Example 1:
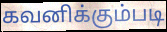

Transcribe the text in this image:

கவனிக்கும்படி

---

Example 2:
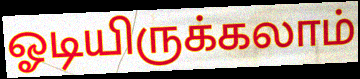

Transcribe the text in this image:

ஓடியிருக்கலாம்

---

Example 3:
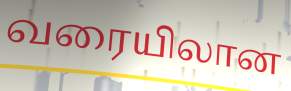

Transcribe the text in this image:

வரையிலான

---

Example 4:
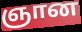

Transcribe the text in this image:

ஞான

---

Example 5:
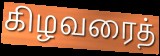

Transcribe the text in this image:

கிழவரைத்